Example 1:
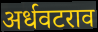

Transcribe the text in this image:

अर्धवटराव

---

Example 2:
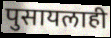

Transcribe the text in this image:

पुसायलाही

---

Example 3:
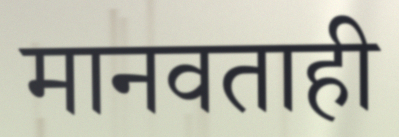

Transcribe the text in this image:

मानवताही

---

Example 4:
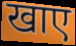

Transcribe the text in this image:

खाए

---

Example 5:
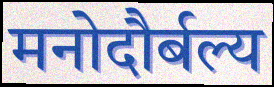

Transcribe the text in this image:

मनोदौर्बल्य